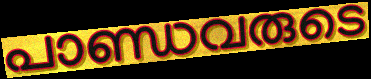
പാണ്ഡവരുടെ